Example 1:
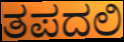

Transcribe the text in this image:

ತಪದಲಿ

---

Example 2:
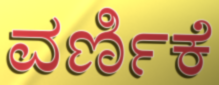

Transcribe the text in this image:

ವರ್ಣಿಕೆ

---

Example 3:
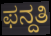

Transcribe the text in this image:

ಫನ್ದತಿ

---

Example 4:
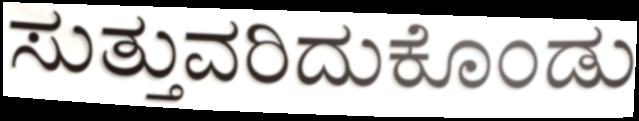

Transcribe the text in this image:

ಸುತ್ತುವರಿದುಕೊಂಡು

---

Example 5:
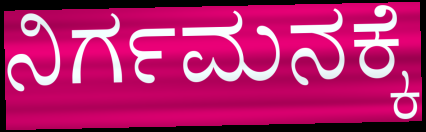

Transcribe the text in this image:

ನಿರ್ಗಮನಕ್ಕೆ